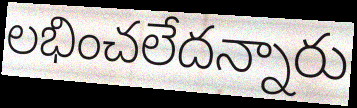
లభించలేదన్నారు